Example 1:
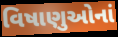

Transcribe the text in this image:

વિષાણુઓનાં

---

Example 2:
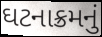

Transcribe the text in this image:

ઘટનાક્રમનું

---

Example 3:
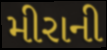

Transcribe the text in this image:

મીરાની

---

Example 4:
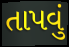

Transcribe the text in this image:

તાપવું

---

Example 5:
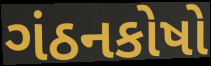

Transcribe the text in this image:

ગંઠનકોષો